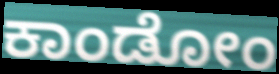
ಕಾಂಡೋಂ